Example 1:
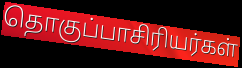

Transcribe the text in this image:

தொகுப்பாசிரியர்கள்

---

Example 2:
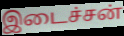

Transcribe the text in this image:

இடைச்சன்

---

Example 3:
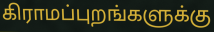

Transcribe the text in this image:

கிராமப்புறங்களுக்கு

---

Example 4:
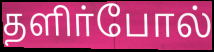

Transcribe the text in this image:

தளிர்போல்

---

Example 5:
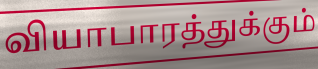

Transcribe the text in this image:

வியாபாரத்துக்கும்